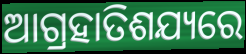
ଆଗ୍ରହାତିଶଯ୍ୟରେ